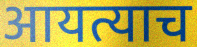
आयत्याच